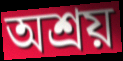
অশ্রয়